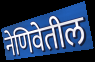
नेणिवेतील